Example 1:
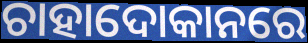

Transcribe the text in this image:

ଚାହାଦୋକାନରେ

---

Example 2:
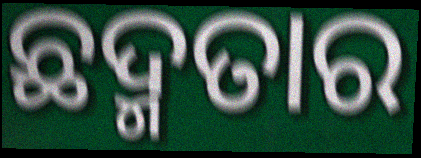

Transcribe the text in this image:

ଛଦ୍ମତାର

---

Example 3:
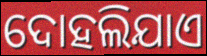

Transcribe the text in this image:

ଦୋହଲିଯାଏ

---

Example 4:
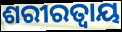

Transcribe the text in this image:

ଶରୀରତ୍ୱାୟ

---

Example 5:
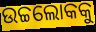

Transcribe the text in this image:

ଉଚ୍ଚଲୋକକୁ